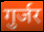
गुर्जर